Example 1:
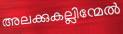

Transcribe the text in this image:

അലക്കുകല്ലിന്മേൽ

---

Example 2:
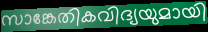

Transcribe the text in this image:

സാങ്കേതികവിദ്യയുമായി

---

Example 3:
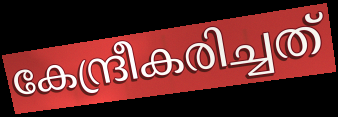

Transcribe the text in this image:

കേന്ദ്രീകരിച്ചത്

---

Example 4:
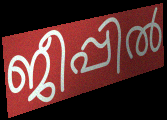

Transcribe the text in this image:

ജീപ്പിൽ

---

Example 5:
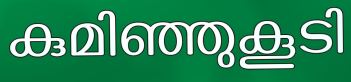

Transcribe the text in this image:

കുമിഞ്ഞുകൂടി